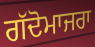
ਗੱਦੋਮਾਜਰਾ